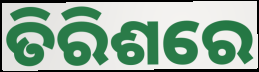
ତିରିଶରେ